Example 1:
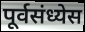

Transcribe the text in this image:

पूर्वसंध्येस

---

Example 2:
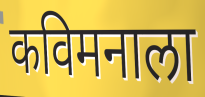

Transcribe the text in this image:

कविमनाला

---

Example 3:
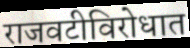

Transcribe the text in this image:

राजवटीविरोधात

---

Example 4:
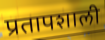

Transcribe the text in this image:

प्रतापशाली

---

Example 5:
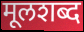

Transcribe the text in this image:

मूलशब्द